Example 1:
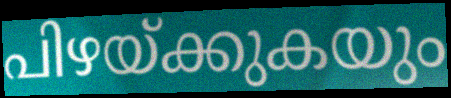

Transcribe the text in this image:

പിഴയ്ക്കുകയും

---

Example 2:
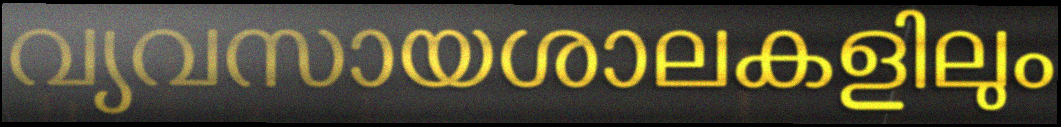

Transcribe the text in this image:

വ്യവസായശാലകളിലും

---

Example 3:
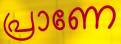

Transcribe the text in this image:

പ്രാണേ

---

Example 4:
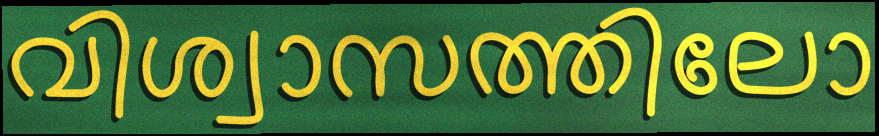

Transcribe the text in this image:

വിശ്വാസത്തിലോ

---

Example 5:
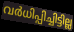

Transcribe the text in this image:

വർധിപ്പിച്ചിട്ടില്ല